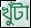
খুঁটা